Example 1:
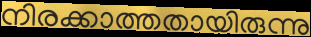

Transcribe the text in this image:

നിരക്കാത്തതായിരുന്നു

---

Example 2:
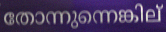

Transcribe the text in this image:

തോന്നുന്നെങ്കില്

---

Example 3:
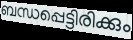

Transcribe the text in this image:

ബന്ധപ്പെട്ടിരിക്കും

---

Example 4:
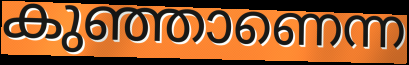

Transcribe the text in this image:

കുഞ്ഞാണെന്ന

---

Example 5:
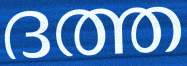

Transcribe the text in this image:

ദത്ത